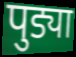
पुड्या